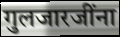
गुलजारजींना